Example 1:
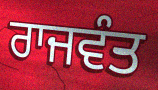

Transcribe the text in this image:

ਰਾਜਵੰਤ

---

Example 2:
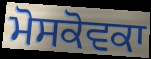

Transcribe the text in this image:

ਮੋਸਕੋਵਕਾ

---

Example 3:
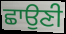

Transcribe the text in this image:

ਛਾਉਣੀ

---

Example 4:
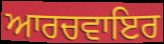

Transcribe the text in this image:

ਆਰਚਵਾਇਰ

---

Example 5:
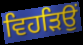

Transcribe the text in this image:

ਵਿਹੜਿਉਂ